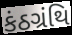
કંઠગ્રંથિ